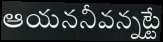
ఆయననీవన్నట్టే